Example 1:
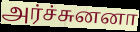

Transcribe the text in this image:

அர்ச்சுனனா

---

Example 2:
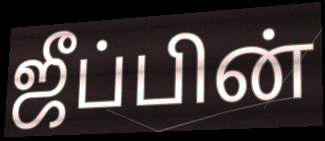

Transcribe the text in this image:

ஜீப்பின்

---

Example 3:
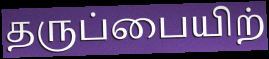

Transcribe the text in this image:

தருப்பையிற்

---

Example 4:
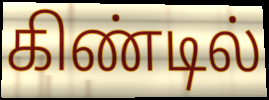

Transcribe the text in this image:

கிண்டில்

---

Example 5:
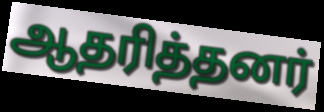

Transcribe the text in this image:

ஆதரித்தனர்